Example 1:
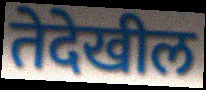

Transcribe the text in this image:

तेदेखील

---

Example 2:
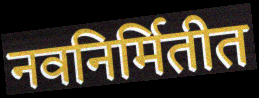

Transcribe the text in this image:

नवनिर्मितीत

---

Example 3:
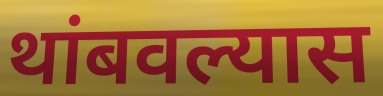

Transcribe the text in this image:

थांबवल्यास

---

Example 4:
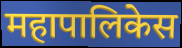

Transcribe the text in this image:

महापालिकेस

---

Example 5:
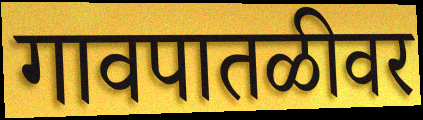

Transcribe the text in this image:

गावपातळीवर